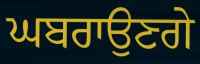
ਘਬਰਾਉਣਗੇ